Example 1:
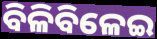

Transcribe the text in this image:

ବିଳିବିଳେଇ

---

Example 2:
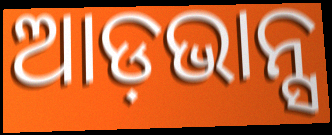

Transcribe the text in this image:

ଆଡ଼ଭାନ୍ସ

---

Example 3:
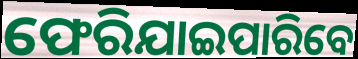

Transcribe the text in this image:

ଫେରିଯାଇପାରିବେ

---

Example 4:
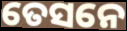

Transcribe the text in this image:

ତେସନେ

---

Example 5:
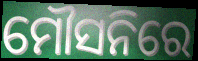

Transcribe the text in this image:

ମୌସନିରେ